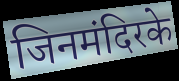
जिनमंदिरके